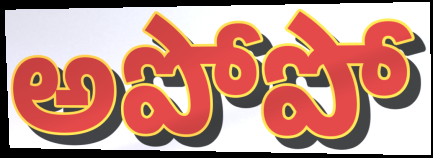
అపోపో